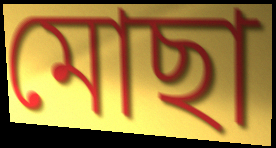
মোছা